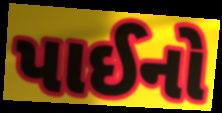
પાઈનો